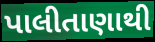
પાલીતાણાથી